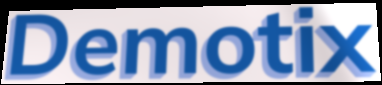
Demotix